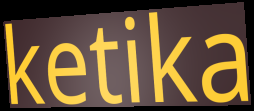
ketika